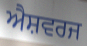
ਐਸ਼ਵਰਜ